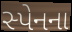
સ્પેનના